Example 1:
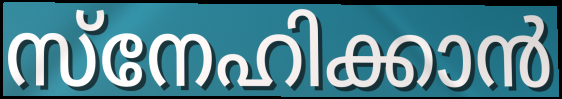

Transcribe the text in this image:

സ്നേഹിക്കാൻ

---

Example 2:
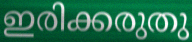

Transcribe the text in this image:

ഇരിക്കരുതു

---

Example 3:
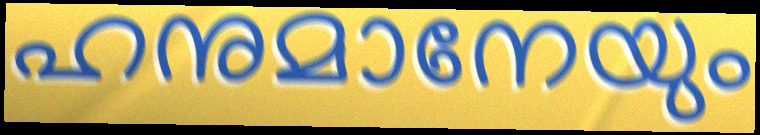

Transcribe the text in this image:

ഹനുമാനേയും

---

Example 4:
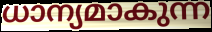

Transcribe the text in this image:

ധാന്യമാകുന്ന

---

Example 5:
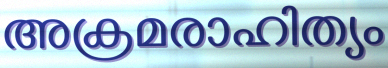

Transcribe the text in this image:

അക്രമരാഹിത്യം